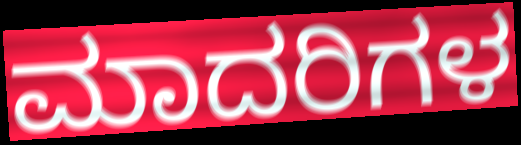
ಮಾದರಿಗಳ